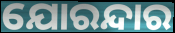
ଯୋରନ୍ଦାର